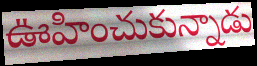
ఊహించుకున్నాడు